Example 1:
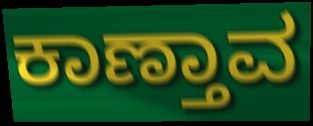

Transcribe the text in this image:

ಕಾಣ್ತಾವ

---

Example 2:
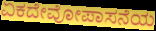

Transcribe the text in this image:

ಏಕದೇವೋಪಾಸನೆಯ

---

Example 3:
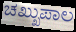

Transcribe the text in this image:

ಚಖ್ಖುಪಾಲ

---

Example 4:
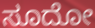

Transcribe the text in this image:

ಸೂದೋ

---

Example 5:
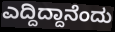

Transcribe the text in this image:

ಎದ್ದಿದ್ದಾನೆಂದು